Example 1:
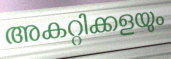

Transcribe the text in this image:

അകറ്റിക്കളയും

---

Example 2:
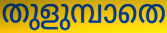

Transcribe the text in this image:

തുളുമ്പാതെ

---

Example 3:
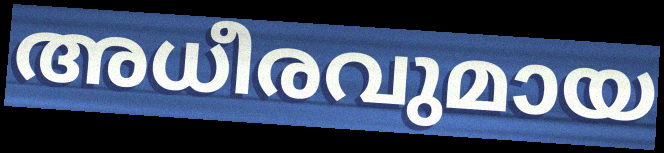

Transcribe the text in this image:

അധീരവുമായ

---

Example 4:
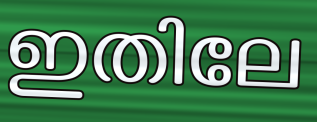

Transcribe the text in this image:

ഇതിലേ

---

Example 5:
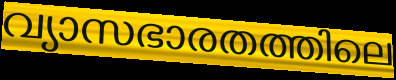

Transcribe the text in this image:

വ്യാസഭാരതത്തിലെ